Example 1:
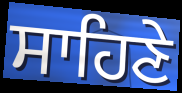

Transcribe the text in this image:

ਸਾਹਿਣੇ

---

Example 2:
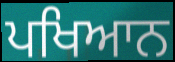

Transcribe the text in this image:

ਪਖਿਆਨ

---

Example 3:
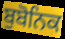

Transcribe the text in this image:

ਬੁਬੋਨਿਕ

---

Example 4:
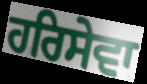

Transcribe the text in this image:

ਹਰਿਸੇਵਾ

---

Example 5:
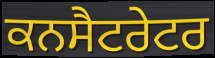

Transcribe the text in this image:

ਕਨਸੈਟਰੇਟਰ